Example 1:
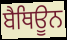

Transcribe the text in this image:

ਬੈਥਿਊਨ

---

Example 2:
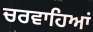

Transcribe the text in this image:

ਚਰਵਾਹਿਆਂ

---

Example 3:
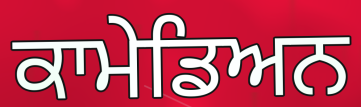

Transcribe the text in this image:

ਕਾਮੇਡਿਅਨ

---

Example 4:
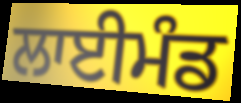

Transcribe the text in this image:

ਲਾਈਮੰਡ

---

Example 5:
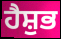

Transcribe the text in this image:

ਹੈਸ਼ੁਭ